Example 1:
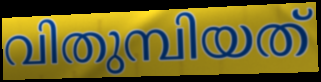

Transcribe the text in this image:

വിതുമ്പിയത്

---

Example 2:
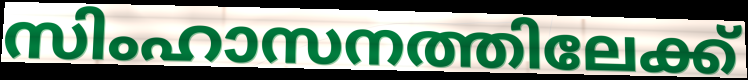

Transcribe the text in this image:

സിംഹാസനത്തിലേക്ക്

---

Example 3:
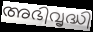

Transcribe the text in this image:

അഭിവൃദ്ധി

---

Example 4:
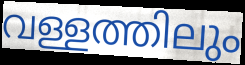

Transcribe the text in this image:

വള്ളത്തിലും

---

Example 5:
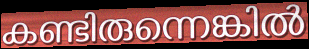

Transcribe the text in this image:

കണ്ടിരുന്നെങ്കിൽ